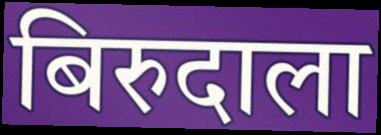
बिरुदाला